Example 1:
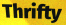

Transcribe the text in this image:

Thrifty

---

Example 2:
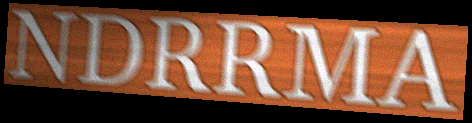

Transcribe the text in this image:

NDRRMA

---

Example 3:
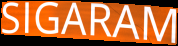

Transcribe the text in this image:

SIGARAM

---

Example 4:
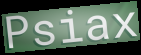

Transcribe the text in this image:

Psiax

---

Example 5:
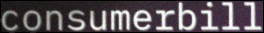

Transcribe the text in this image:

consumerbill